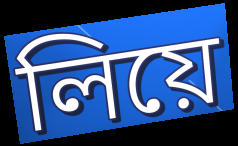
লিয়ে